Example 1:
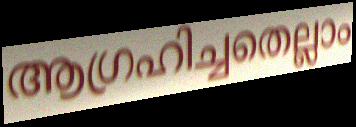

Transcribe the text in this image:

ആഗ്രഹിച്ചതെല്ലാം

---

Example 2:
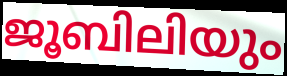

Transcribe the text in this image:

ജൂബിലിയും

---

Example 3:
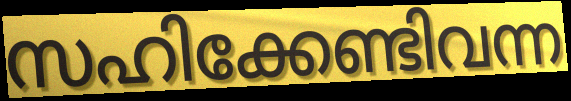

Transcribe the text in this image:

സഹിക്കേണ്ടിവന്ന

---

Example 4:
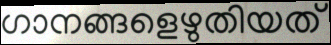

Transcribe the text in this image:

ഗാനങ്ങളെഴുതിയത്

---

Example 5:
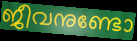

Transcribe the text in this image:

ജീവനുണ്ടോ